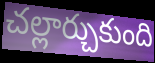
చల్లార్చుకుంది